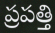
ప్రపత్తి